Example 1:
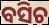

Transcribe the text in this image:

ବସିଚ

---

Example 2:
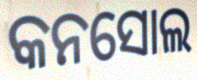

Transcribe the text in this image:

କନସୋଲ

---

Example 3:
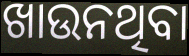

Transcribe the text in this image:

ଖାଉନଥିବା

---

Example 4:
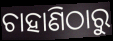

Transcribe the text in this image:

ଚାହାଣିଠାରୁ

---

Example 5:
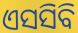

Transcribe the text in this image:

ଏସସିବି